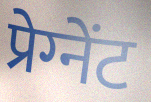
प्रेग्‍नेंट